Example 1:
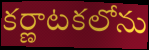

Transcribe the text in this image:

కర్ణాటకలోను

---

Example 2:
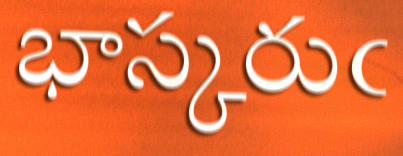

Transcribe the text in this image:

భాస్కరుఁ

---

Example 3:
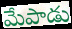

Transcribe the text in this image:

మేపాడు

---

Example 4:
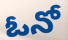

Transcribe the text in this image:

ఓనో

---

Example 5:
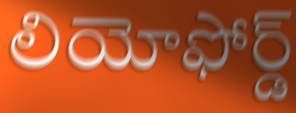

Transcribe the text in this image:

లియోఫోర్డ్